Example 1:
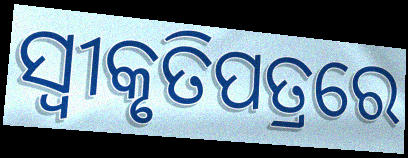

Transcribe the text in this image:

ସ୍ୱୀକୃତିପତ୍ରରେ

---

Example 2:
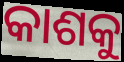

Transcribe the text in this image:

କାଶକୁ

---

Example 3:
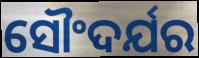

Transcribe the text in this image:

ସୌଂଦର୍ଯର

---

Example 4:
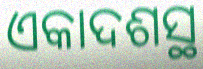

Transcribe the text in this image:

ଏକାଦଶସ୍ଥ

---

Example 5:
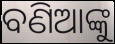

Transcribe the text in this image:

ବଣିଆଙ୍କୁ